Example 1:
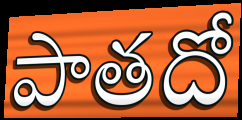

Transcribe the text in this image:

పాతదో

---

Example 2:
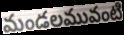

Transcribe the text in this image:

మండలమువంటి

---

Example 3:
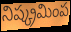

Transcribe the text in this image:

నిష్క్రమింప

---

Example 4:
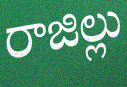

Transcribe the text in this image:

రాజిల్లు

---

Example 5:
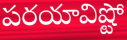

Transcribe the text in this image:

పరయావిష్టో